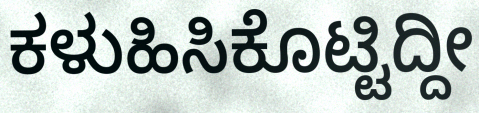
ಕಳುಹಿಸಿಕೊಟ್ಟಿದ್ದೀ